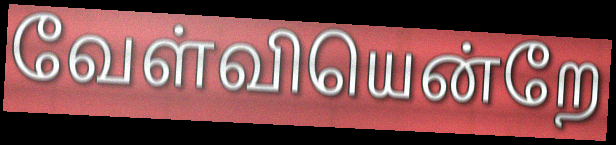
வேள்வியென்றே